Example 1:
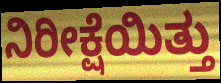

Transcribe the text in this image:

ನಿರೀಕ್ಷೆಯಿತ್ತು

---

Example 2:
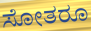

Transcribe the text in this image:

ಸೋತರೂ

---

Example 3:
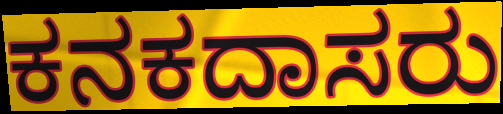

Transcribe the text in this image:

ಕನಕದಾಸರು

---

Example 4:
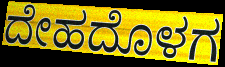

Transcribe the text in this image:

ದೇಹದೊಳಗ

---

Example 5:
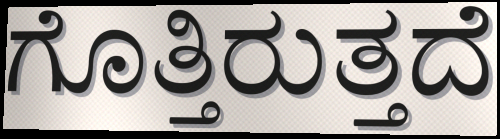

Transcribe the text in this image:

ಗೊತ್ತಿರುತ್ತದೆ